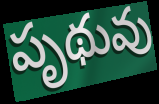
పృథువు